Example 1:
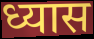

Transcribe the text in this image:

ध्यास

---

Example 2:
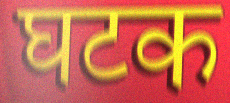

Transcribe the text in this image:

घटक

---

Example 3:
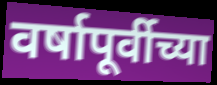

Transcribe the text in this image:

वर्षापूर्वीच्या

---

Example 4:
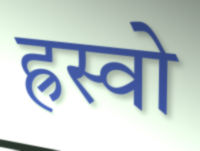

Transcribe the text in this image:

ह्रस्वो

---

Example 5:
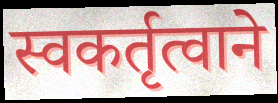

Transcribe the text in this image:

स्वकर्तृत्वाने